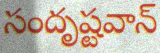
సందృష్టవాన్